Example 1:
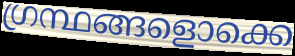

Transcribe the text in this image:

ഗ്രന്ഥങ്ങളൊക്കെ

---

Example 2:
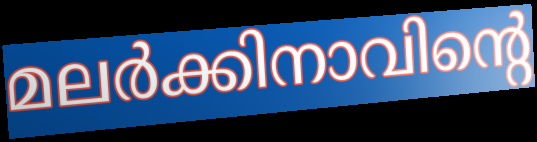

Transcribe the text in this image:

മലർക്കിനാവിന്റെ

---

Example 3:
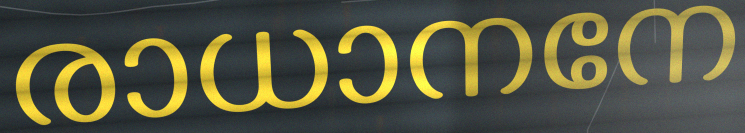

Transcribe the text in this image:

രാധാനനേ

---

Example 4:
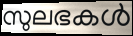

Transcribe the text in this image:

സുലഭകൾ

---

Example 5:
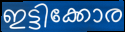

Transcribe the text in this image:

ഇട്ടിക്കോര